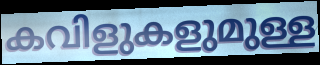
കവിളുകളുമുള്ള